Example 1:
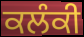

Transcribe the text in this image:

ਕਲੰਕੀ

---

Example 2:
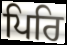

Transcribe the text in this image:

ਪਿਰਿ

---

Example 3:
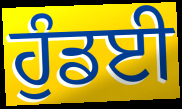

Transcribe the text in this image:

ਹੁੰਡਈ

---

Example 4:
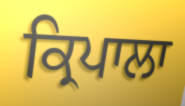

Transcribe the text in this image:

ਕ੍ਰਿਪਾਲਾ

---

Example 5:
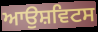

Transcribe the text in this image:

ਆਉਸ਼ਵਿਟਸ